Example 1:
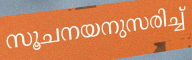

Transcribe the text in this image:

സൂചനയനുസരിച്ച്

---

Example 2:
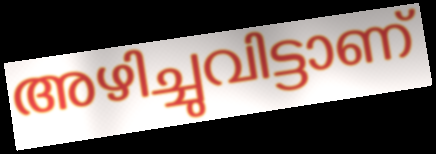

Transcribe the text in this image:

അഴിച്ചുവിട്ടാണ്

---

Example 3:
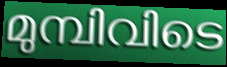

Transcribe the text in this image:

മുമ്പിവിടെ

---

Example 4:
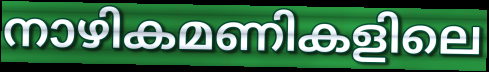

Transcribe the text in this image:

നാഴികമണികളിലെ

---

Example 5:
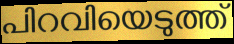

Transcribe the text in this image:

പിറവിയെടുത്ത്